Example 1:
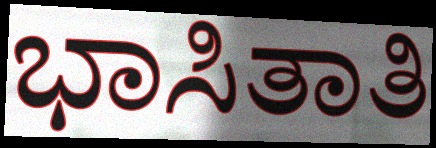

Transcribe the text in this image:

ಭಾಸಿತಾತಿ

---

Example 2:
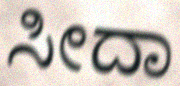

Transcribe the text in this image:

ಸೀದಾ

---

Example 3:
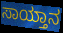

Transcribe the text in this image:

ಸಾಯ್ತಾನ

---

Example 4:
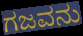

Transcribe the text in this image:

ಗಜವನು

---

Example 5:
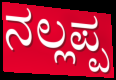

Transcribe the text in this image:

ನಲ್ಲಪ್ಪ